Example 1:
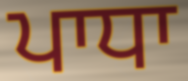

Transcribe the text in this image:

ਪਾਧਾ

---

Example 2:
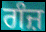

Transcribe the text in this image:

ਗੰਜ਼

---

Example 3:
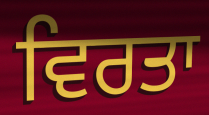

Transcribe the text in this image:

ਵਿਰਤਾ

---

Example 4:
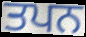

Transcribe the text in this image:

ਤਪਨ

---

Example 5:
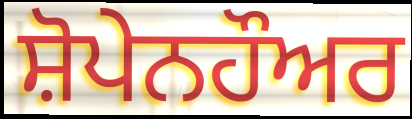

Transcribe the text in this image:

ਸ਼ੋਪੇਨਹੌਅਰ